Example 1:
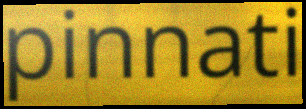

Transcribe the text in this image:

pinnati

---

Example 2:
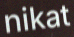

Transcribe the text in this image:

nikat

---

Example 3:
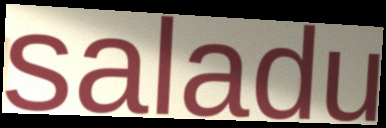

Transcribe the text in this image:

saladu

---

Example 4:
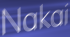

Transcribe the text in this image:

Nakai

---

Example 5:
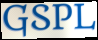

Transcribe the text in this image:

GSPL